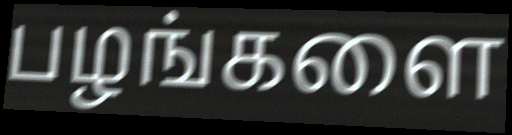
பழங்களை